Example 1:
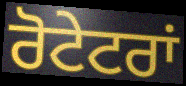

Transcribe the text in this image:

ਰੋਟੇਟਰਾਂ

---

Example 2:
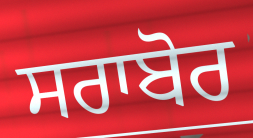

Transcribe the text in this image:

ਸਰਾਬੋਰ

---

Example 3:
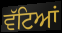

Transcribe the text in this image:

ਵੱਟਿਆਂ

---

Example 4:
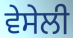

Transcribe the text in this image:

ਵੇਸੇਲੀ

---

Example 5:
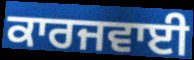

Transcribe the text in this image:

ਕਾਰਜਵਾਈ